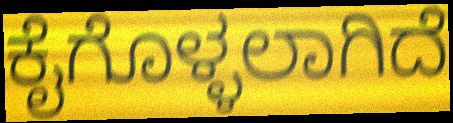
ಕೈಗೊಳ್ಳಲಾಗಿದೆ